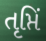
તૃપ્તિં